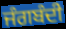
ਜੰਗਬੰਦੀ